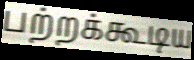
பற்றக்கூடிய